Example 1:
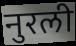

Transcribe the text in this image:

नुरली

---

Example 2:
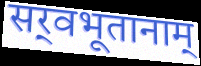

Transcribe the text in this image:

सर्वभूतानाम्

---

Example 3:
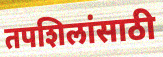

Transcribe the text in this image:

तपशिलांसाठी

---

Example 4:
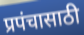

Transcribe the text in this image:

प्रपंचासाठी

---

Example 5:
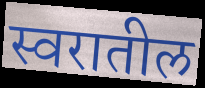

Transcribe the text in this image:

स्वरातील